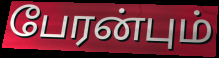
பேரன்பும்